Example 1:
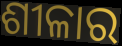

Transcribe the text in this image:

ଶୀଳାର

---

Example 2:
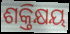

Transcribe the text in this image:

ଶକ୍ତିକ୍ଷୟ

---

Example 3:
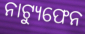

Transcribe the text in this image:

ନାଟ୍ୟୁଫେନ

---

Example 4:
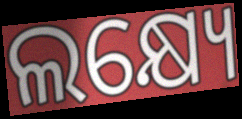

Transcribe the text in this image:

ଲକ୍ଷ୍ୟେ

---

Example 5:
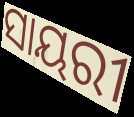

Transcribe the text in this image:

ସାୟରୀ